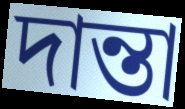
দান্তা